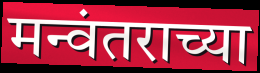
मन्वंतराच्या